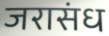
जरासंध